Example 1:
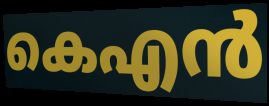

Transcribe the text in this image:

കെഎൻ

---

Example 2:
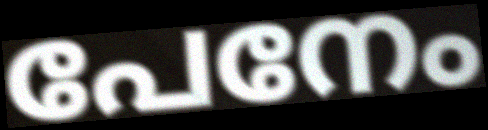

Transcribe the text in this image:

പേനേം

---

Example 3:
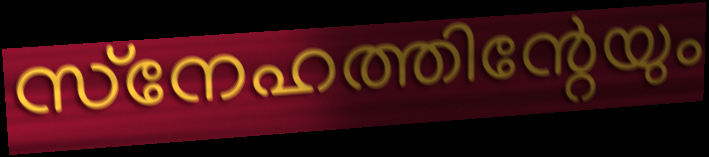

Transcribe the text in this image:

സ്‌നേഹത്തിന്റേയും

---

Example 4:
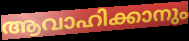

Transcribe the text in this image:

ആവാഹിക്കാനും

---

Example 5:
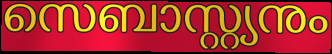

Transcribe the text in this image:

സെബാസ്റ്റ്യനും